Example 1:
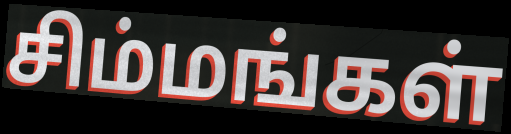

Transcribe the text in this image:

சிம்மங்கள்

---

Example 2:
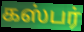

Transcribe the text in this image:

கஸ்பர்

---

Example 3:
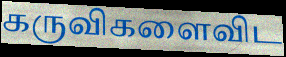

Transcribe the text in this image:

கருவிகளைவிட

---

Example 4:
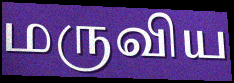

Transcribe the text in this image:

மருவிய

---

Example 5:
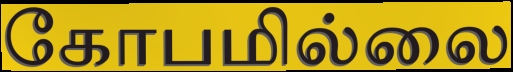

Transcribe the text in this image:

கோபமில்லை